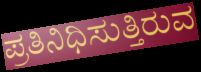
ಪ್ರತಿನಿಧಿಸುತ್ತಿರುವ